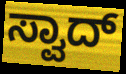
ಸ್ವಾದ್